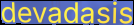
devadasis